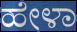
ಹೇಳಾ